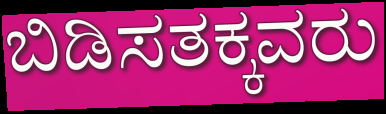
ಬಿಡಿಸತಕ್ಕವರು